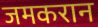
जमकरान